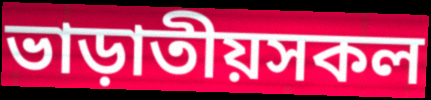
ভাড়াতীয়সকল